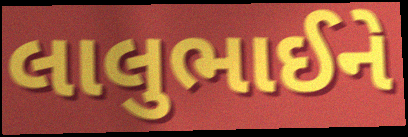
લાલુભાઈને